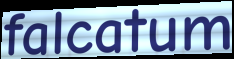
falcatum